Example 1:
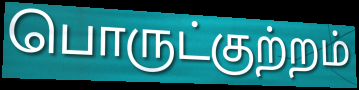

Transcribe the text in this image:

பொருட்குற்றம்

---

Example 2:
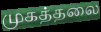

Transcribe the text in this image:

முகத்தலை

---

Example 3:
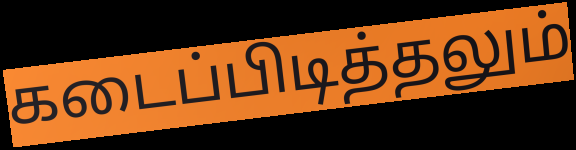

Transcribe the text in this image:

கடைப்பிடித்தலும்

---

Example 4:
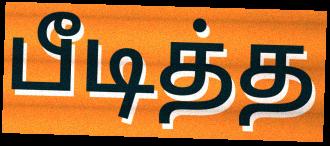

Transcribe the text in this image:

பீடித்த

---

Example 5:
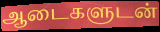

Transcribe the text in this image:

ஆடைகளுடன்